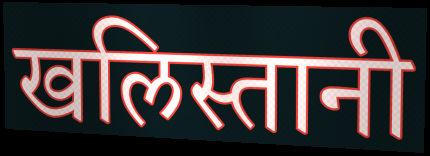
खलिस्तानी